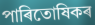
পাৰিতোষিকৰ